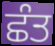
ਛੰਤ